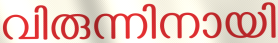
വിരുന്നിനായി